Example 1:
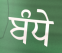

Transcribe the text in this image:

ਬੰਧੇ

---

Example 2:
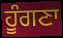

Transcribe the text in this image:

ਹੂੰਗਣਾ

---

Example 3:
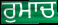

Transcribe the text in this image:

ਰੁਮਾਚ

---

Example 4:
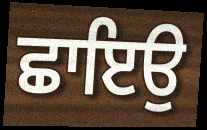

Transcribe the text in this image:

ਛਾਇਉ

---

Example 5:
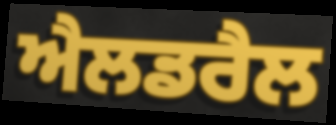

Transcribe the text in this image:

ਐਲਡਰੈਲ